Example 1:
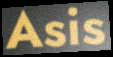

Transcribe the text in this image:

Asis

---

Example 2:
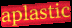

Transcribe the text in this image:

aplastic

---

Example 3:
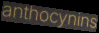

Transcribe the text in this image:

anthocynins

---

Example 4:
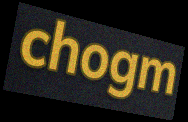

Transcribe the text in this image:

chogm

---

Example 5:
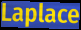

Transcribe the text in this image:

Laplace